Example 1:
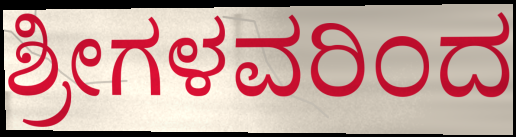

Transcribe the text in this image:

ಶ್ರೀಗಳವರಿಂದ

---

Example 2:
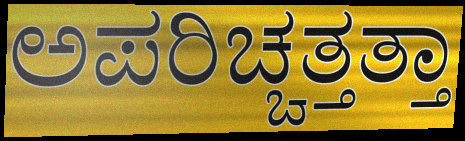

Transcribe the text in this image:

ಅಪರಿಚ್ಚತ್ತತ್ತಾ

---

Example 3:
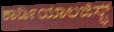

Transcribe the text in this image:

ಕಾರ್ಡಿಯಾಲಜಿಸ್ಟ್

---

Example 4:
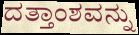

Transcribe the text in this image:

ದತ್ತಾಂಶವನ್ನು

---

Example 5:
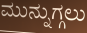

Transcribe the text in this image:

ಮುನ್ನುಗ್ಗಲು